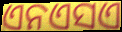
ଏନଏସଏ